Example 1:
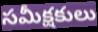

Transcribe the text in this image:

సమీక్షకులు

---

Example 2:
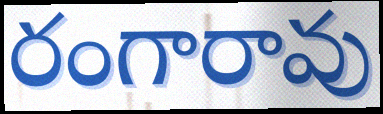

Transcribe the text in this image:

రంగారావు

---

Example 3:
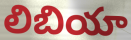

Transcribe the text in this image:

లిబియా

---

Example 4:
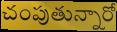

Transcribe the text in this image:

చంపుతున్నారో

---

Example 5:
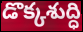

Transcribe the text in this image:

డొక్కశుద్ధి